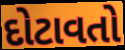
દોટાવતો